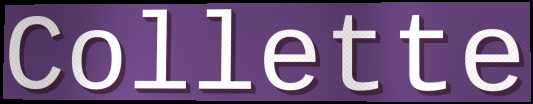
Collette